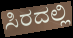
ಸಿರದಲ್ಲಿ